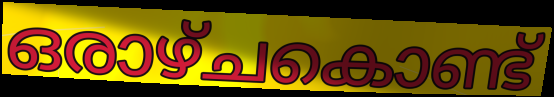
ഒരാഴ്ചകൊണ്ട്